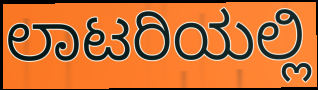
ಲಾಟರಿಯಲ್ಲಿ